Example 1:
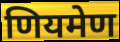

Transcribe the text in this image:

णियमेण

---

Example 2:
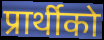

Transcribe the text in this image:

प्रार्थीको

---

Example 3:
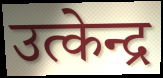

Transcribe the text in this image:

उत्केन्द्र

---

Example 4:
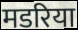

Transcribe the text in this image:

मडरिया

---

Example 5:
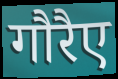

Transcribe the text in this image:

गौरैए